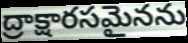
ద్రాక్షారసమైనను